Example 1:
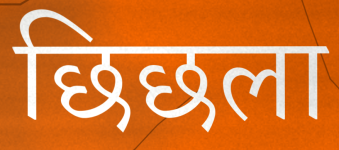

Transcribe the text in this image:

छिछला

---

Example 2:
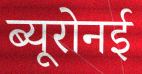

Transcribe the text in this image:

ब्यूरोनई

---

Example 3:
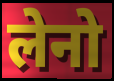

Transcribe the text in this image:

लेनो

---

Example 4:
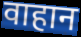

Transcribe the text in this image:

वाहान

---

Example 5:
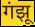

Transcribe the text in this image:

गंझू